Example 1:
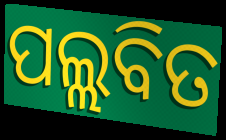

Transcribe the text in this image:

ପଲ୍ଲବିତ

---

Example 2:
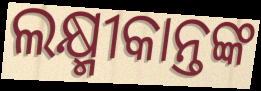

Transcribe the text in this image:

ଲକ୍ଷ୍ମୀକାନ୍ତଙ୍କ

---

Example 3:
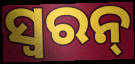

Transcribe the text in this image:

ସ୍ୱରନ୍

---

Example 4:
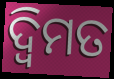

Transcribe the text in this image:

ଦ୍ୱିମତ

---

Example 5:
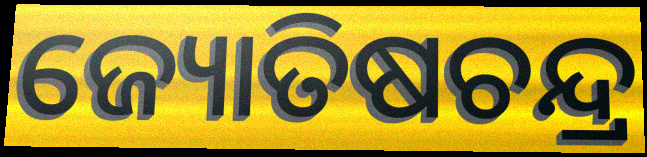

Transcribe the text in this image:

ଜ୍ୟୋତିଷଚନ୍ଦ୍ର